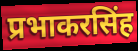
प्रभाकरसिंह